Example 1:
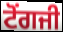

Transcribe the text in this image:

ਟੋਂਗਜੀ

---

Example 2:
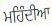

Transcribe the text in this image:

ਮਹਿੰਦੀਆ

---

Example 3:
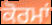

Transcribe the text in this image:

ਕੋਰਮਾਂ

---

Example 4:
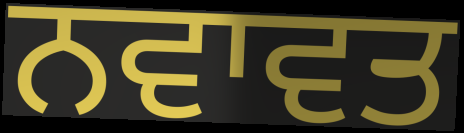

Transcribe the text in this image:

ਨਵਾਵਤ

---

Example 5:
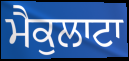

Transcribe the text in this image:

ਮੈਕੁਲਾਟਾ